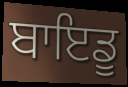
ਬਾਇਡੂ